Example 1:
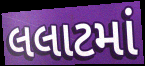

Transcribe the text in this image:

લલાટમાં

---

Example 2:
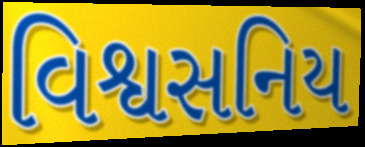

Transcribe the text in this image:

વિશ્વસનિય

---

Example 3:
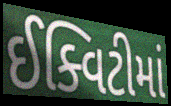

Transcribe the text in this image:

ઈક્વિટીમાં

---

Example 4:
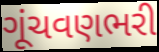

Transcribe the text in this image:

ગૂંચવણભરી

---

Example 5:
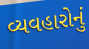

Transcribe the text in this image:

વ્યવહારોનું